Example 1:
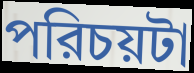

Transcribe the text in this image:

পরিচয়টা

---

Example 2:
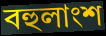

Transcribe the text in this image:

বহুলাংশ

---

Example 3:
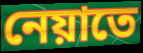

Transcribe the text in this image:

নেয়াতে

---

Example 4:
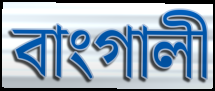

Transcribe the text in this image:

বাংগালী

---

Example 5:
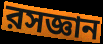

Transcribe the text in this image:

রসজ্ঞান